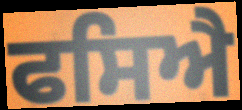
ਫਸਿਐ